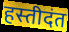
हस्तीदंत